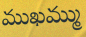
ముఖమ్ము